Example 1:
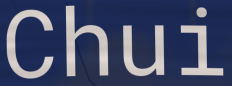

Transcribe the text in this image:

Chui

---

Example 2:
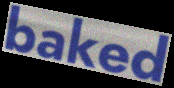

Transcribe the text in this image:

baked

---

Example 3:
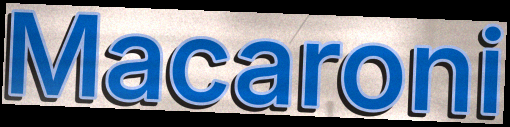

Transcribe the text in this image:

Macaroni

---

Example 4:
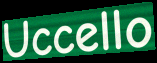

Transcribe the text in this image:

Uccello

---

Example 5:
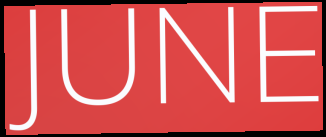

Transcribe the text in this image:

JUNE